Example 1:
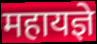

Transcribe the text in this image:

महायज्ञे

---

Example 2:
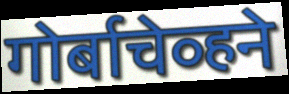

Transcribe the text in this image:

गोर्बाचेव्हने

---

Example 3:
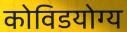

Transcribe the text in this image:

कोविडयोग्य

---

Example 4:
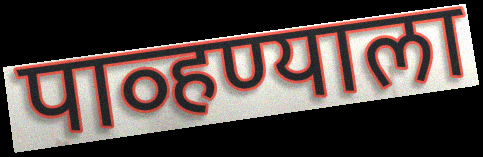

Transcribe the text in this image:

पाव्हण्याला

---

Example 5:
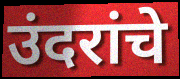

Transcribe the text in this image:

उंदरांचे